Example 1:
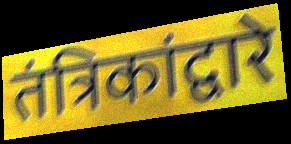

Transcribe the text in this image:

तंत्रिकांद्वारे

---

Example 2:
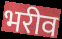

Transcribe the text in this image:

भरीव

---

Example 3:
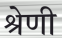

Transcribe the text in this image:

श्रेणी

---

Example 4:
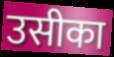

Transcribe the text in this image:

उसीका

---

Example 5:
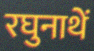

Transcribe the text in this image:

रघुनाथें